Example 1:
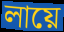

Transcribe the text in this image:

লায়ে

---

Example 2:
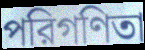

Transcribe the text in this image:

পরিগণিতা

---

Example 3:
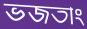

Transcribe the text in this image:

ভজতাং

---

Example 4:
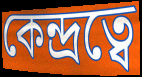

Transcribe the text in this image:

কেন্দ্রত্বে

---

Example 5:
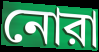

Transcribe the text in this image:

নোরা